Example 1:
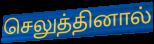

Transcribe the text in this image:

செலுத்தினால்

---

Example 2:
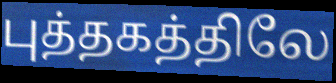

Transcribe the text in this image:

புத்தகத்திலே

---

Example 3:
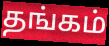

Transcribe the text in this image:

தங்கம்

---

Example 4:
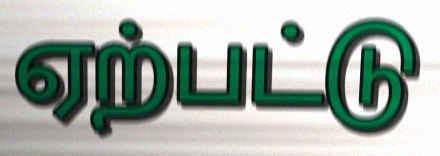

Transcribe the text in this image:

ஏற்பட்டு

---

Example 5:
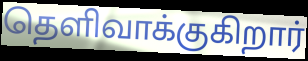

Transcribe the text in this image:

தெளிவாக்குகிறார்